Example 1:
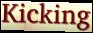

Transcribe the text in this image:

Kicking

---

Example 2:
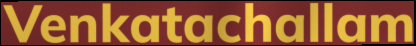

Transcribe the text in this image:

Venkatachallam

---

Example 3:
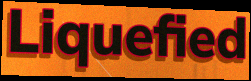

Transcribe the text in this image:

Liquefied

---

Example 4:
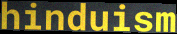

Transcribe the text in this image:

hinduism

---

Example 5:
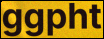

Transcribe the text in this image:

ggpht